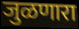
जुळणारा